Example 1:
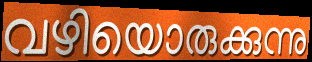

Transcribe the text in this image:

വഴിയൊരുക്കുന്നു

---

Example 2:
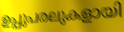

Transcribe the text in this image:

ഉപ്പുപരലുകളായി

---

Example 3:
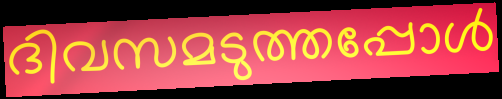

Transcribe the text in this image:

ദിവസമടുത്തപ്പോൾ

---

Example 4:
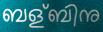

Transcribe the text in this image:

ബള്ബിനു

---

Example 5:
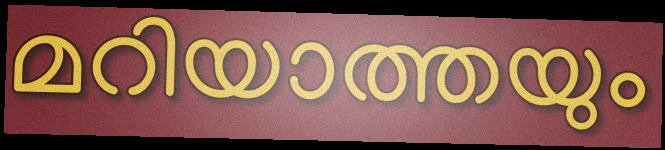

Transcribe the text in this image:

മറിയാത്തയും